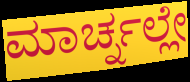
ಮಾರ್ಚ್ನಲ್ಲೇ